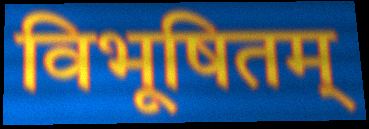
विभूषितम्